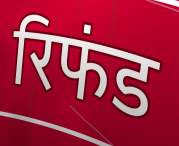
रिफंड